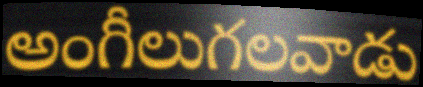
అంగీలుగలవాడు